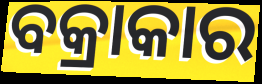
ବକ୍ରାକାର